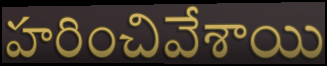
హరించివేశాయి